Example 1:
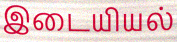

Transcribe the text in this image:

இடையியல்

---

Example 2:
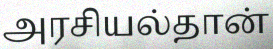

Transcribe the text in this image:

அரசியல்தான்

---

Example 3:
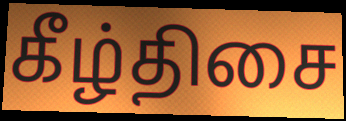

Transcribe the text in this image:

கீழ்திசை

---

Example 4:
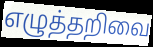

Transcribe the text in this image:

எழுத்தறிவை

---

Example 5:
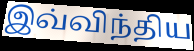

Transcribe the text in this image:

இவ்விந்திய